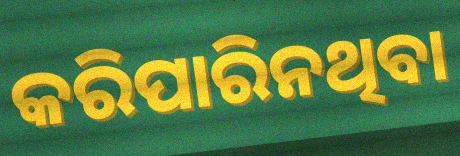
କରିପାରିନଥିବା